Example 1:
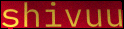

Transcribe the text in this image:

shivuu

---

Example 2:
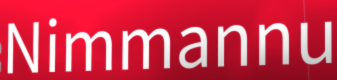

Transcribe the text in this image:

Nimmannu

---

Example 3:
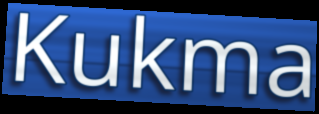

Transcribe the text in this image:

Kukma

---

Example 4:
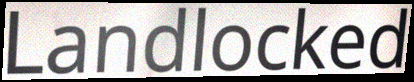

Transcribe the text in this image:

Landlocked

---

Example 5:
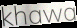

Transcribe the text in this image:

khawa